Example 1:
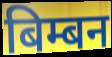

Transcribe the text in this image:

बिम्बन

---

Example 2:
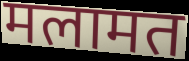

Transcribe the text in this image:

मलामत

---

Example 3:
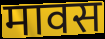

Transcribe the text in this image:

मावस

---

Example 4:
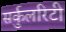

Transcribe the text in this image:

सर्कुलरिटी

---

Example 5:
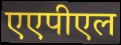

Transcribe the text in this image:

एएपीएल